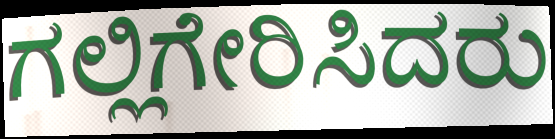
ಗಲ್ಲಿಗೇರಿಸಿದರು